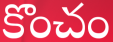
కొంచం